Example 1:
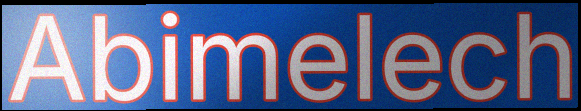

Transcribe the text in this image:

Abimelech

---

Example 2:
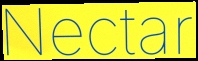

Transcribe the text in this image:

Nectar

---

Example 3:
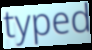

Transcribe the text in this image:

typed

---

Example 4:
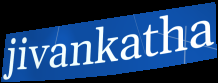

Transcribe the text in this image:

jivankatha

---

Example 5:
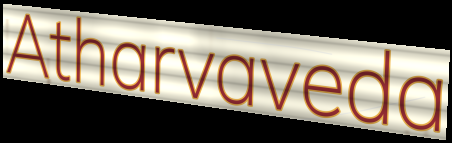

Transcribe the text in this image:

Atharvaveda